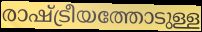
രാഷ്ട്രീയത്തോടുള്ള